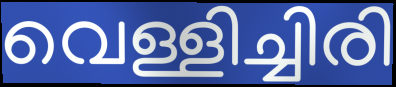
വെള്ളിച്ചിരി